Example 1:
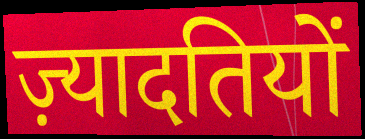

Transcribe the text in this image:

ज़्यादतियों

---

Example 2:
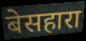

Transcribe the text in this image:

बेसहारा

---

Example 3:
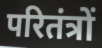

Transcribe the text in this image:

परितंत्रों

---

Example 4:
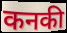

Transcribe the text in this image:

कनकी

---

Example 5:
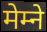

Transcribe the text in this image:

मेम्ने